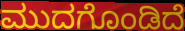
ಮುದಗೊಂಡಿದೆ